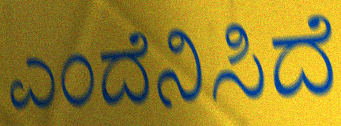
ಎಂದೆನಿಸಿದೆ